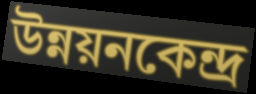
উন্নয়নকেন্দ্র